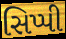
સિપ્પી